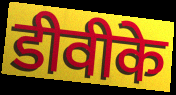
डीवीके